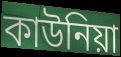
কাউনিয়া